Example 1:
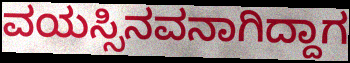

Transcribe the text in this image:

ವಯಸ್ಸಿನವನಾಗಿದ್ದಾಗ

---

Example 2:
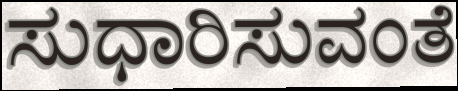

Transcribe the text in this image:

ಸುಧಾರಿಸುವಂತೆ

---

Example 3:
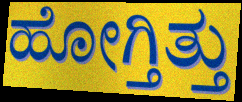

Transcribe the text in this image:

ಹೋಗ್ತಿತ್ತು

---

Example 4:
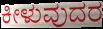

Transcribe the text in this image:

ಕೀಳುವುದರ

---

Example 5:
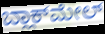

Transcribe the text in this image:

ಬ್ಲಾಕ್‌ಮೇಲ್